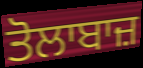
ਤੋਲਾਬਾਜ਼